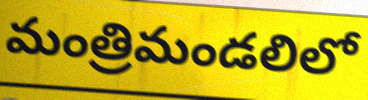
మంత్రిమండలిలో